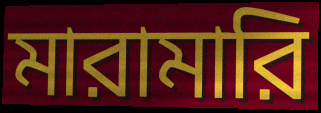
মারামারি